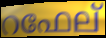
റഫേല്